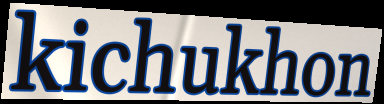
kichukhon